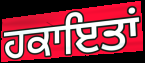
ਹਕਾਇਤਾਂ